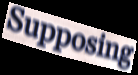
Supposing